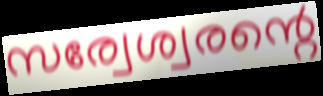
സര്വേശ്വരന്റെ